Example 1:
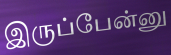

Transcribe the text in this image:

இருப்பேன்னு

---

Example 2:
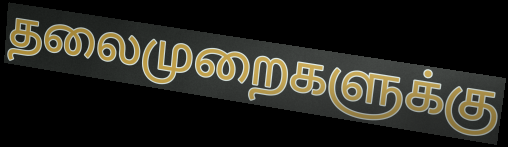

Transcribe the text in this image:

தலைமுறைகளுக்கு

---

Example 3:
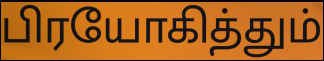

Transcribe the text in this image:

பிரயோகித்தும்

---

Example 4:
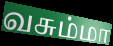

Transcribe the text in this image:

வசும்மா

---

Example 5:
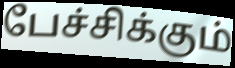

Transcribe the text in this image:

பேச்சிக்கும்